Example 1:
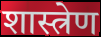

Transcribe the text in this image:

शास्त्रेण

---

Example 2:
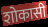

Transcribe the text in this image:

शोकासी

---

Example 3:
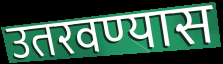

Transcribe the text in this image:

उतरवण्यास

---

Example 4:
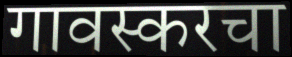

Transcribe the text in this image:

गावस्करचा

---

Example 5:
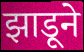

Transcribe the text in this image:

झाडूने